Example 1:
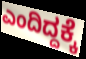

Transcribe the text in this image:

ಎಂದಿದ್ದಕ್ಕೆ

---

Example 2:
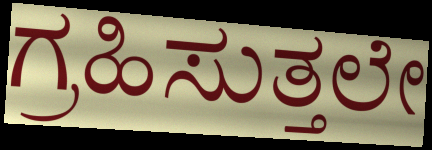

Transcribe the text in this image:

ಗ್ರಹಿಸುತ್ತಲೇ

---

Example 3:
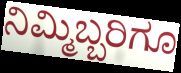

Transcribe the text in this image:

ನಿಮ್ಮಿಬ್ಬರಿಗೂ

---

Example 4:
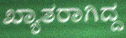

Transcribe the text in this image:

ಖ್ಯಾತರಾಗಿದ್ದ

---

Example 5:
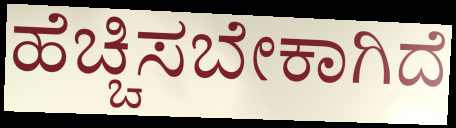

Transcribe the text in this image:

ಹೆಚ್ಚಿಸಬೇಕಾಗಿದೆ